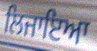
ਲਿਜਾਇਆ